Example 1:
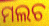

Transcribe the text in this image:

ମଲଚ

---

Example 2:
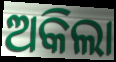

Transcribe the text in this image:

ଅକିଲା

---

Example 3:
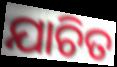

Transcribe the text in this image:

ଯାଚିତ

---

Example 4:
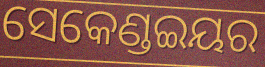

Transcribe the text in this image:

ସେକେଣ୍ଡଇୟର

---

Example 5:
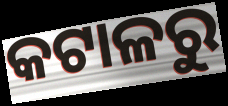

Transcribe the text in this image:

କଟାଳରୁ